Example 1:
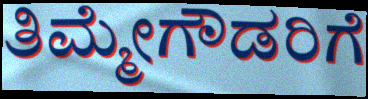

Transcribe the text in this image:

ತಿಮ್ಮೇಗೌಡರಿಗೆ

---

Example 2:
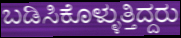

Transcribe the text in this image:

ಬಡಿಸಿಕೊಳ್ಳುತ್ತಿದ್ದರು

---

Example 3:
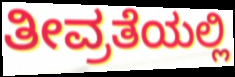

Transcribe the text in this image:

ತೀವ್ರತೆಯಲ್ಲಿ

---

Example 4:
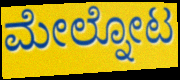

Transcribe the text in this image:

ಮೇಲ್ನೋಟ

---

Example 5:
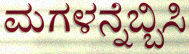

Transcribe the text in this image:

ಮಗಳನ್ನೆಬ್ಬಿಸಿ